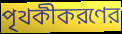
পৃথকীকরণের